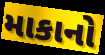
માકાનો